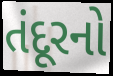
તંદૂરનો